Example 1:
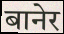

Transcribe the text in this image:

बानेर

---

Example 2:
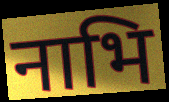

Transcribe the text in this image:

नाभि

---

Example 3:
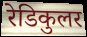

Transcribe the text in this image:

रेडिकुलर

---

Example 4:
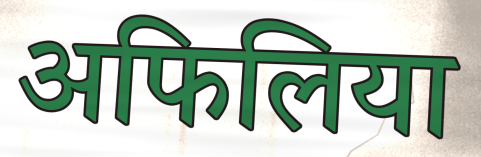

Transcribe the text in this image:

अफिलिया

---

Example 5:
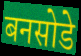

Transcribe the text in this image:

बनसोडे